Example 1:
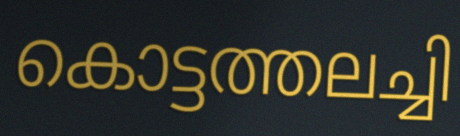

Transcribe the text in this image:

കൊട്ടത്തലച്ചി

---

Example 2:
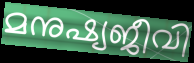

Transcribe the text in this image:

മനുഷ്യജീവി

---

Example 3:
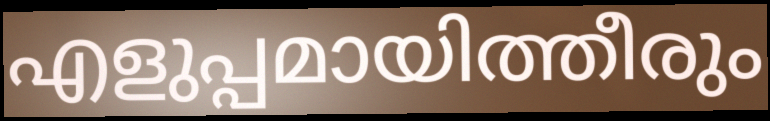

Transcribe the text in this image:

എളുപ്പമായിത്തീരും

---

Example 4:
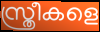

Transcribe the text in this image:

സ്ത്രീകളെ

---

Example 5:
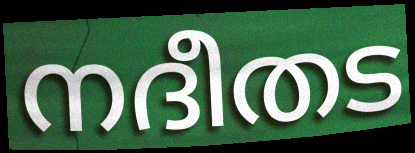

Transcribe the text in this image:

നദീതട